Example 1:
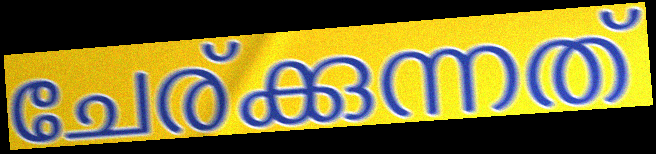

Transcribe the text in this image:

ചേര്ക്കുന്നത്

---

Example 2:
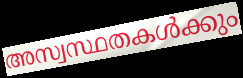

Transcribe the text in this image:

അസ്വസ്ഥതകൾക്കും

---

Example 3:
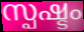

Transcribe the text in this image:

സ്പഷ്ടം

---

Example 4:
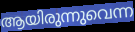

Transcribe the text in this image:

ആയിരുന്നുവെന്ന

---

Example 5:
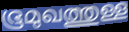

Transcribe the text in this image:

ഭൂമുഖത്തുള്ള